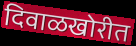
दिवाळखोरीत